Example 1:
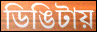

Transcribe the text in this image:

ডিঙিটায়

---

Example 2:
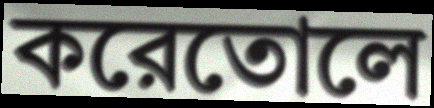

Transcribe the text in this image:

করেতোলে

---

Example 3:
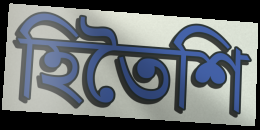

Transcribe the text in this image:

হিতৈশি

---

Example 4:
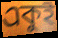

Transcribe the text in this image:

একুই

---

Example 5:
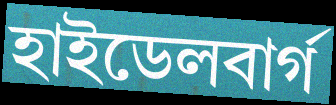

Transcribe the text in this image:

হাইডেলবার্গ